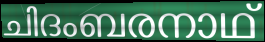
ചിദംബരനാഥ്